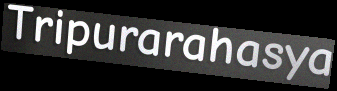
Tripurarahasya